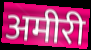
अमीरी